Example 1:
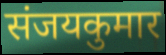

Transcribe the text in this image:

संजयकुमार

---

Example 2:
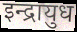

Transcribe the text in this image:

इन्द्रायुध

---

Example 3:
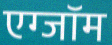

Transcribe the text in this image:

एग्जॉम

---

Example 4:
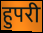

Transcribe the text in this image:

हुपरी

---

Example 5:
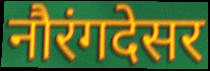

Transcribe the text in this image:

नौरंगदेसर